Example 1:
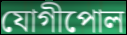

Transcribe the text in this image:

যোগীপোল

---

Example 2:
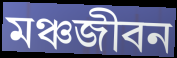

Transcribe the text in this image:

মঞ্চজীবন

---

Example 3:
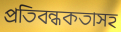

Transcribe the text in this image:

প্রতিবন্ধকতাসহ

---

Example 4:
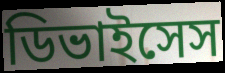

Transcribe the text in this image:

ডিভাইসেস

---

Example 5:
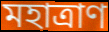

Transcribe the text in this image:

মহাত্রাণ